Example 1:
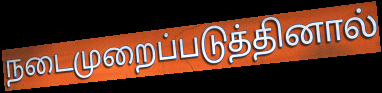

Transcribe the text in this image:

நடைமுறைப்படுத்தினால்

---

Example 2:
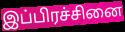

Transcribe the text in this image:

இப்பிரச்சினை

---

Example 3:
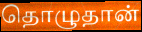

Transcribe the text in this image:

தொழுதான்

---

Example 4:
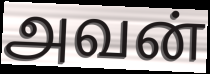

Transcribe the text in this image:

அவன்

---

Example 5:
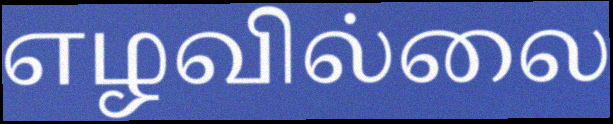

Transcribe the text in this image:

எழவில்லை